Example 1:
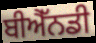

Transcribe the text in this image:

ਬੀਐੱਨਡੀ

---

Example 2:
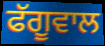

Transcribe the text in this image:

ਫੱਗੂਵਾਲ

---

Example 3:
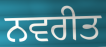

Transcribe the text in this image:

ਨਵਰੀਤ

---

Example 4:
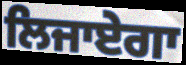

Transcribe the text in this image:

ਲਿਜਾਏਗਾ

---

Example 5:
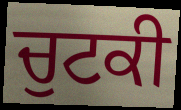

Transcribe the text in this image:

ਚੁਟਕੀ